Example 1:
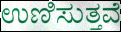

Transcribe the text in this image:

ಉಣಿಸುತ್ತವೆ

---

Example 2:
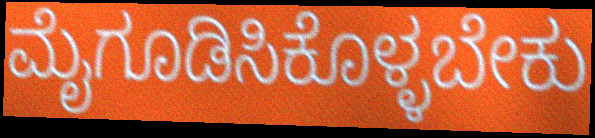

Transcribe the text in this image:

ಮೈಗೂಡಿಸಿಕೊಳ್ಳಬೇಕು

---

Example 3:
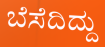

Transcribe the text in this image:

ಬೆಸೆದಿದ್ದು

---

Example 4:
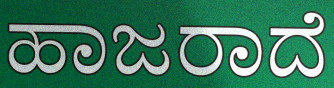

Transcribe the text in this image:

ಹಾಜರಾದೆ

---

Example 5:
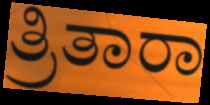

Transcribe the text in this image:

ತ್ರಿತಾರಾ